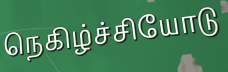
நெகிழ்ச்சியோடு